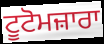
ਟੂਟੋਮਜ਼ਾਰਾ